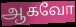
ஆகவோ